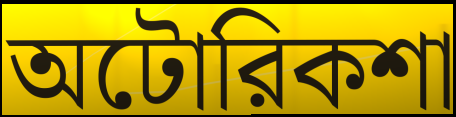
অটোরিকশা